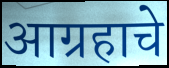
आग्रहाचे